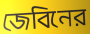
জেবিনের